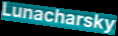
Lunacharsky